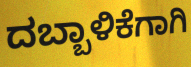
ದಬ್ಬಾಳಿಕೆಗಾಗಿ